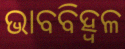
ଭାବବିହ୍ବଳ